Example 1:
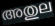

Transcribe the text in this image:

അതുല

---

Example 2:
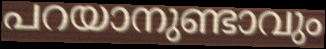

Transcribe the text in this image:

പറയാനുണ്ടാവും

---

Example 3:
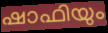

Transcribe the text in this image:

ഷാഫിയും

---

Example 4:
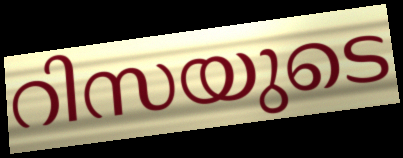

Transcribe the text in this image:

റിസയുടെ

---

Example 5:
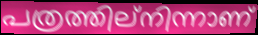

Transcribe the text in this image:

പത്രത്തില്നിന്നാണ്